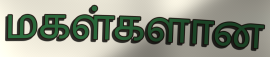
மகள்களான